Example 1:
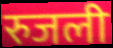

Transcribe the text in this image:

रुजली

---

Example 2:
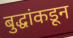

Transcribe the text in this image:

बुद्धांकडून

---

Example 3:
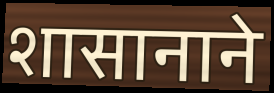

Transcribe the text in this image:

शासानाने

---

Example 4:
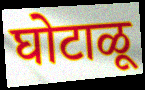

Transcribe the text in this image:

घोटाळू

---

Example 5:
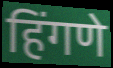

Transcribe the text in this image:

हिंगणे